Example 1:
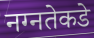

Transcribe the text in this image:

नग्नतेकडे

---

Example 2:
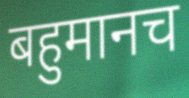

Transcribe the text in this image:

बहुमानच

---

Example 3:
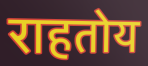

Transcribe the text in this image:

राहतोय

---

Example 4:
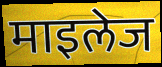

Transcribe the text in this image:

माइलेज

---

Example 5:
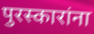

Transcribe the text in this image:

पुरस्कारांना